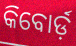
କିବୋର୍ଡ଼